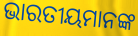
ଭାରତୀୟମାନଙ୍କ